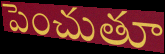
పెంచుతూ